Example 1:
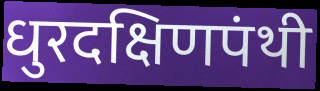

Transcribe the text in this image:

धुरदक्षिणपंथी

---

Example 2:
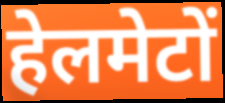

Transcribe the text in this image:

हेलमेटों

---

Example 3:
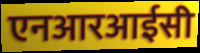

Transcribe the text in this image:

एनआरआईसी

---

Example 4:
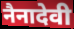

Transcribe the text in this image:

नैनादेवी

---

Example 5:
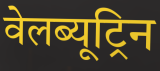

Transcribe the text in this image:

वेलब्यूट्रिन